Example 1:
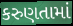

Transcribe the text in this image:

કરુણતામાં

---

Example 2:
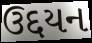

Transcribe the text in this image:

ઉદ્દયન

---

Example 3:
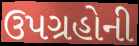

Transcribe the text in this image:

ઉપગ્રહોની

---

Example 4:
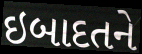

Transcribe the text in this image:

ઇબાદતને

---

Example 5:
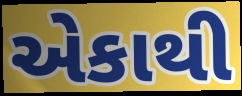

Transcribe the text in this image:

એકાથી